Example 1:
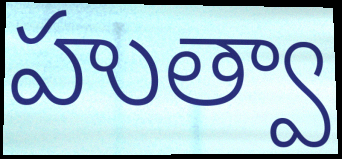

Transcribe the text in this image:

హుత్వా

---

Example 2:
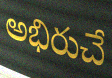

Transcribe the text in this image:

అభిరుచే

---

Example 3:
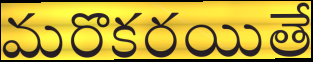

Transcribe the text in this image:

మరొకరయితే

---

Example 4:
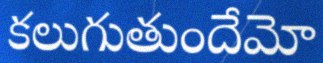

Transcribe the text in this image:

కలుగుతుందేమో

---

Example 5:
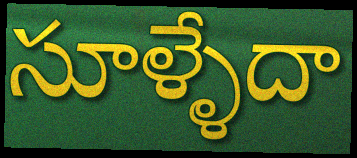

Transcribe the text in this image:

సూళ్ళేదా